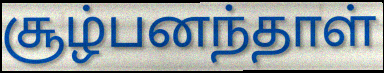
சூழ்பனந்தாள்